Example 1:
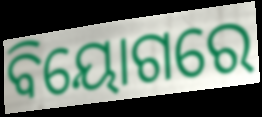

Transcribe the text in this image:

ବିୟୋଗରେ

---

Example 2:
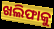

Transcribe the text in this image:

ଖଲିଫାକୁ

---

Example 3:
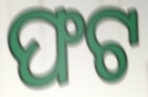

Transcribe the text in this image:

ଫଟ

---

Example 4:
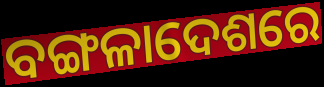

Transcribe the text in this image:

ବଙ୍ଗଳାଦେଶରେ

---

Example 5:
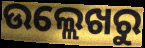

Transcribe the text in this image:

ଉଲ୍ଲେଖରୁ